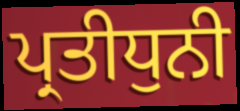
ਪ੍ਰਤੀਧੁਨੀ